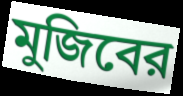
মুজিবের